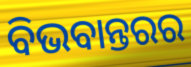
ବିଭବାନ୍ତରର